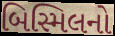
બિસ્મિલનો